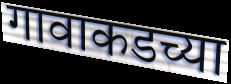
गावाकडच्या